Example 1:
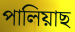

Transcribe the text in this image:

পালিয়াছ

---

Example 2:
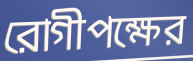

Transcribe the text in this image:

রোগীপক্ষের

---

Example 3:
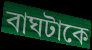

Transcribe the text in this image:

বাঘটাকে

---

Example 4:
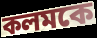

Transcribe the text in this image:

কলমকে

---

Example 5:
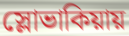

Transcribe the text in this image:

স্লোভাকিয়ায়